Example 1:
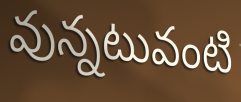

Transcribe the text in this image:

వున్నటువంటి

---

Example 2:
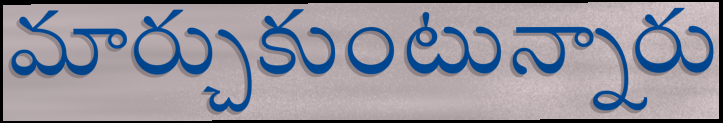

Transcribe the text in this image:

మార్చుకుంటున్నారు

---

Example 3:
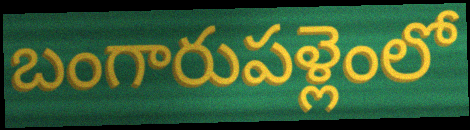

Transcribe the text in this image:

బంగారుపళ్లెంలో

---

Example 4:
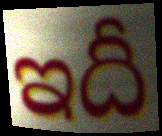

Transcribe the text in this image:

ఇదీ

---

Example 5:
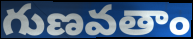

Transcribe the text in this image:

గుణవతాం